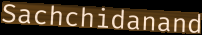
Sachchidanand